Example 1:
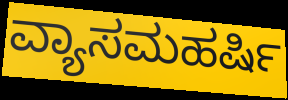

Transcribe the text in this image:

ವ್ಯಾಸಮಹರ್ಷಿ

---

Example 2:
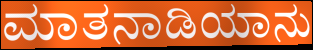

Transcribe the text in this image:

ಮಾತನಾಡಿಯಾನು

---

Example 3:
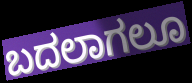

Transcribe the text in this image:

ಬದಲಾಗಲೂ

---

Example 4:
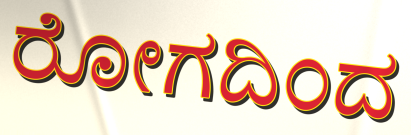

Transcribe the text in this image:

ರೋಗದಿಂದ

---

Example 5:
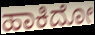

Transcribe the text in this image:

ಹಾಕಿದೋ